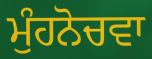
ਮੁੰਹਨੋਚਵਾ